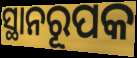
ସ୍ଥାନରୂପକ